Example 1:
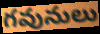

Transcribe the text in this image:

గవునులు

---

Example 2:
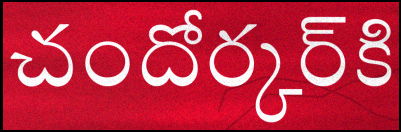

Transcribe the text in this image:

చందోర్కర్‌కి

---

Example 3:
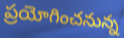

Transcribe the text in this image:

ప్రయోగించనున్న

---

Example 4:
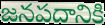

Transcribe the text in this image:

జనపదానికి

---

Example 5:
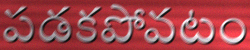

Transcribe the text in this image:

పడకపోవటం